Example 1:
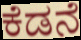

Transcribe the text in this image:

ಕೆಡನೆ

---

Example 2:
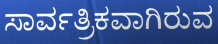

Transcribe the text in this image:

ಸಾರ್ವತ್ರಿಕವಾಗಿರುವ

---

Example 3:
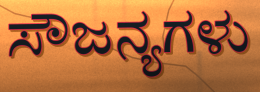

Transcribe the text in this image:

ಸೌಜನ್ಯಗಳು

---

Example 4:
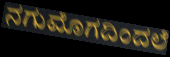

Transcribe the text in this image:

ನಗುಮೊಗದಿಂದಲೆ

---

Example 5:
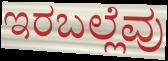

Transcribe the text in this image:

ಇರಬಲ್ಲೆವು